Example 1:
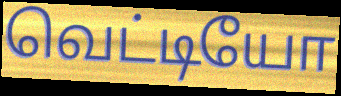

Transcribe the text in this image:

வெட்டியோ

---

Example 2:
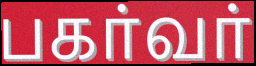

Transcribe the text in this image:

பகர்வர்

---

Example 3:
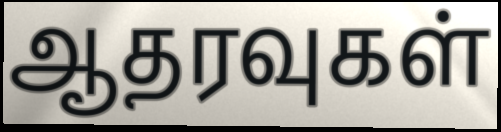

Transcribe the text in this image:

ஆதரவுகள்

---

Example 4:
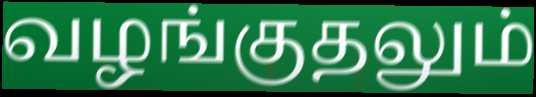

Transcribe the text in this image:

வழங்குதலும்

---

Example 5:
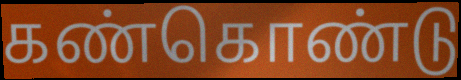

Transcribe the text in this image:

கண்கொண்டு